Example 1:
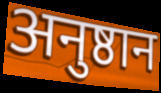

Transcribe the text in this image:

अनुष्ठान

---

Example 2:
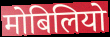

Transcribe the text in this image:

मोबिलियो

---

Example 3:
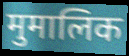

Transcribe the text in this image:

मुमालिक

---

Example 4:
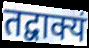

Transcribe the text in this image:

तद्वाक्यं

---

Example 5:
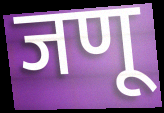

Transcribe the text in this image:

जणू